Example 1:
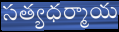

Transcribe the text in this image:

సత్యధర్మాయ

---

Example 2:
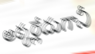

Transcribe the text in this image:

అక్కర్లేదుగానీ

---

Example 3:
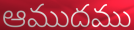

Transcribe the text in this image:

ఆముదము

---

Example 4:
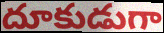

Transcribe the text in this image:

దూకుడుగా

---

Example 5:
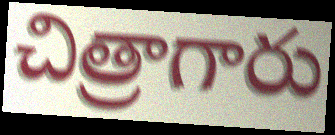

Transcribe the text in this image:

చిత్రాగారు